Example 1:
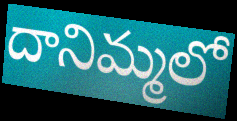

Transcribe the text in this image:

దానిమ్మలో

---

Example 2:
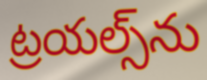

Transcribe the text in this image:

ట్రయల్స్‌ను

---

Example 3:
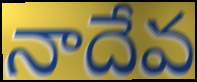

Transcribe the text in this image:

నాదేవ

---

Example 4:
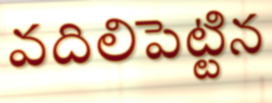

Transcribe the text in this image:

వదిలిపెట్టిన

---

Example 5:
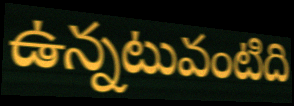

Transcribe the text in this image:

ఉన్నటువంటిది